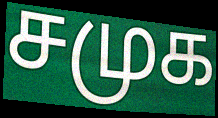
சமுக